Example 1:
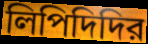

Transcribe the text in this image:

লিপিদিদির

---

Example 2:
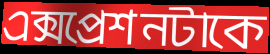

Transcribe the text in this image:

এক্সপ্রেশনটাকে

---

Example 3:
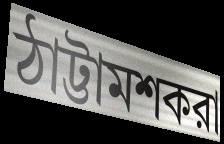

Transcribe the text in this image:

ঠাট্টামশকরা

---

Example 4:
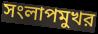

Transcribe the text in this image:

সংলাপমুখর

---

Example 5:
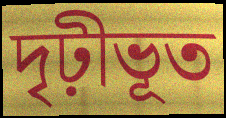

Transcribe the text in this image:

দৃঢ়ীভূত